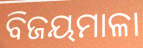
ବିଜୟମାଳା